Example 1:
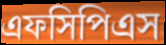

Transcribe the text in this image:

এফসিপিএস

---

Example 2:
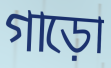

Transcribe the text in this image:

গাড়ো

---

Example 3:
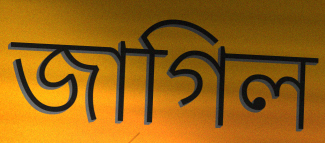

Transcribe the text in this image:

জাগিল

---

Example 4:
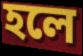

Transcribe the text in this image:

হলে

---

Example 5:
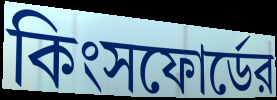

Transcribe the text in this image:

কিংসফোর্ডের